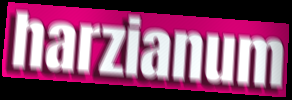
harzianum